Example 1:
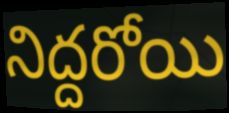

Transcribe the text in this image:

నిద్దరోయి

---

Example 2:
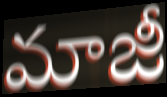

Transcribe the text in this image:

మాజీ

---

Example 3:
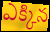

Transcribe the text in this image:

ఎక్కిన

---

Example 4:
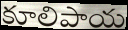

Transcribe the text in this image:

కూలిపాయ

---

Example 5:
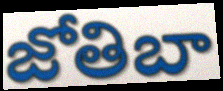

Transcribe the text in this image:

జోతిబా